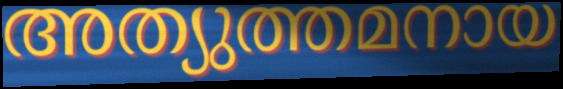
അത്യുത്തമനായ